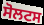
ਸੋਲਟਸ